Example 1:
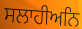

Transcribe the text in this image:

ਸਲਾਹੀਅਨਿ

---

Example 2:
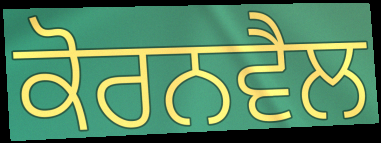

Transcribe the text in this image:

ਕੋਰਨਵੈਲ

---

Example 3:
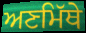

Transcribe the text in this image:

ਅਣਮਿੱਥੇ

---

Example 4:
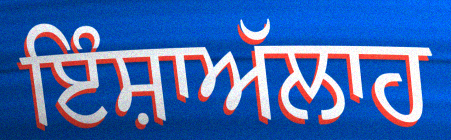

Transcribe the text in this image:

ਇੰਸ਼ਾਅੱਲਾਹ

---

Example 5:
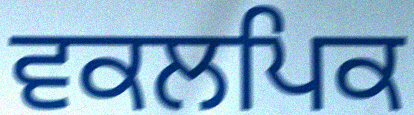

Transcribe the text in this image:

ਵਕਲਪਿਕ